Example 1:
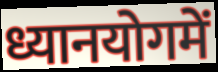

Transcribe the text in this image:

ध्यानयोगमें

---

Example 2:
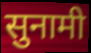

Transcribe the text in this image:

सुनामी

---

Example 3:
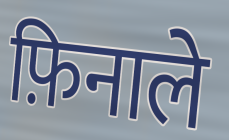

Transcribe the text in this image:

फ़िनाले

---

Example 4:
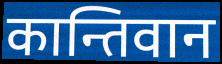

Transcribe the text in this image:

कान्तिवान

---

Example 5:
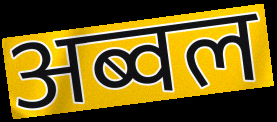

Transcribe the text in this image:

अब्वल